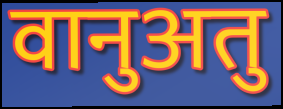
वानुअतु